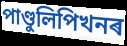
পাণ্ডুলিপিখনৰ